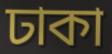
ঢাকা